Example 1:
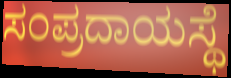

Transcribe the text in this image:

ಸಂಪ್ರದಾಯಸ್ಥೆ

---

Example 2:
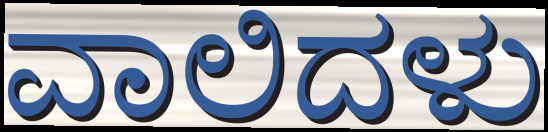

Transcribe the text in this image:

ವಾಲಿದಳು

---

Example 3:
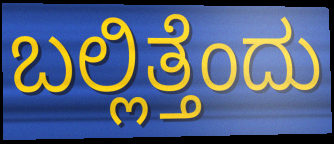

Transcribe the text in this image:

ಬಲ್ಲಿತ್ತೆಂದು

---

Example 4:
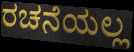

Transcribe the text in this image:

ರಚನೆಯಲ್ಲ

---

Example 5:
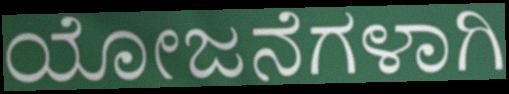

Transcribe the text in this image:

ಯೋಜನೆಗಳಾಗಿ